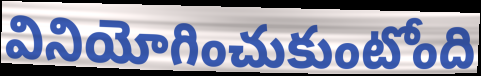
వినియోగించుకుంటోంది